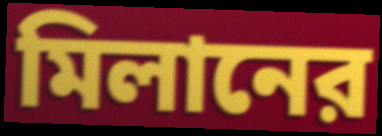
মিলানের